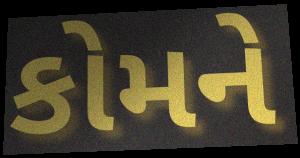
કોમને